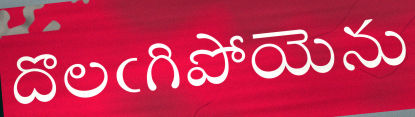
దొలఁగిపోయెను